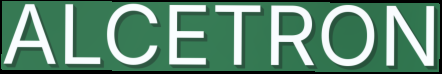
ALCETRON